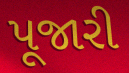
પૂજારી